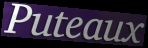
Puteaux